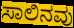
ಸಾಲಿನವು